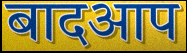
बादआप